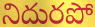
నిదురపో